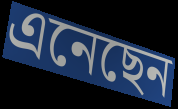
এনেছেন